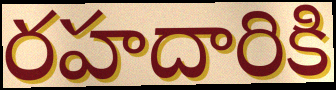
రహదారికి